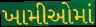
ખામીઓમાં